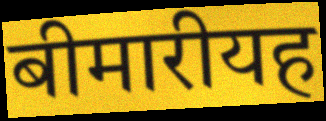
बीमारीयह